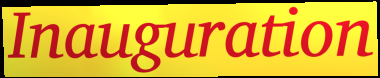
Inauguration